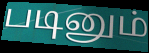
படினும்